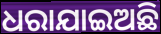
ଧରାଯାଇଅଛି